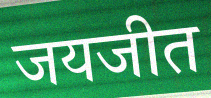
जयजीत